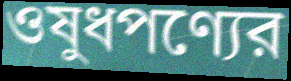
ওষুধপণ্যের